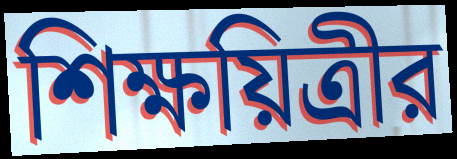
শিক্ষয়িত্রীর